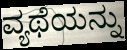
ವ್ಯಥೆಯನ್ನು